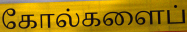
கோல்களைப்